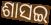
ଶାସଇ